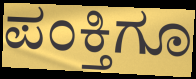
ಪಂಕ್ತಿಗೂ